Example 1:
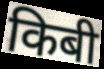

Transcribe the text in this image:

किबी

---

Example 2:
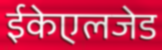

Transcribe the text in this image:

ईकेएलजेड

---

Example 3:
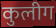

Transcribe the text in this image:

कुलीग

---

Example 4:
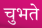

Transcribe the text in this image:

चुभते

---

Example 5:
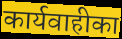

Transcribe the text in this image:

कार्यवाहीका